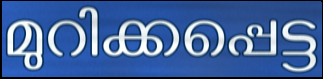
മുറിക്കപ്പെട്ട